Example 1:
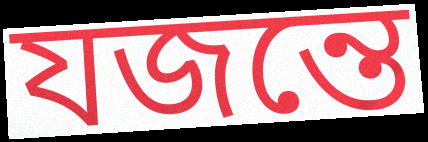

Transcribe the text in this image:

যজন্তে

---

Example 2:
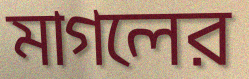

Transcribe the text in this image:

মাগলের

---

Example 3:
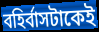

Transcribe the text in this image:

বহির্বাসটাকেই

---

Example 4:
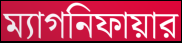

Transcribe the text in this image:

ম্যাগনিফায়ার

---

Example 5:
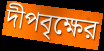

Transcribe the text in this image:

দীপবৃক্ষের